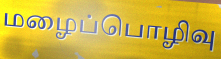
மழைப்பொழிவு